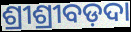
ଶ୍ରୀଶ୍ରୀବଡ଼ଦା